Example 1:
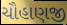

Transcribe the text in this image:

ચૌહાણજી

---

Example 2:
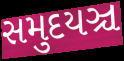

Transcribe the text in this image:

સમુદયઞ્ચ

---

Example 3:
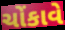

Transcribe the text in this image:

ચોંકાવે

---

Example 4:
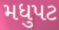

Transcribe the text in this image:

મધુપટ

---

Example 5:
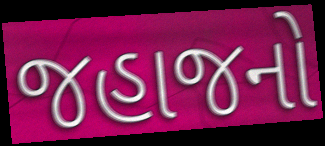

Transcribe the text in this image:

જહાજનો